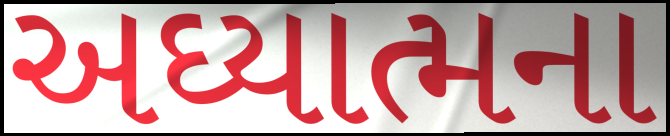
અઘ્યાત્મના